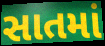
સાતમાં